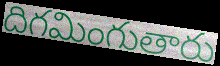
దిగమింగుతారు